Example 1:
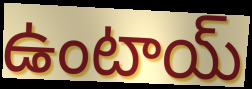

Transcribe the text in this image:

ఉంటాయ్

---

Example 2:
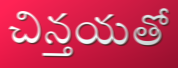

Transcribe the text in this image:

చిన్తయతో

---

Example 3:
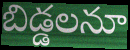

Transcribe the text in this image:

బిడ్డలనూ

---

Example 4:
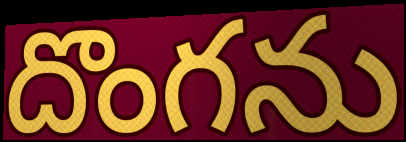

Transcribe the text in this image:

దొంగను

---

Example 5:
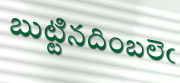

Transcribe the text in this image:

బుట్టినదింబలెఁ